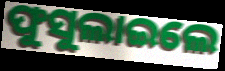
ଫୁସୁଲାଇଲେ